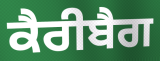
ਕੈਰੀਬੈਗ